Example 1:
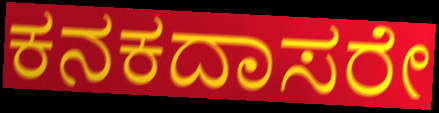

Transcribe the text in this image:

ಕನಕದಾಸರೇ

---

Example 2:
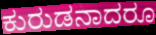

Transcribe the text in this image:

ಕುರುಡನಾದರೂ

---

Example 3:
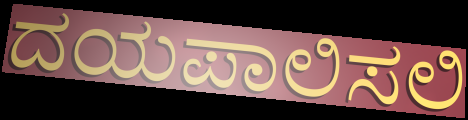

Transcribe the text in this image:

ದಯಪಾಲಿಸಲಿ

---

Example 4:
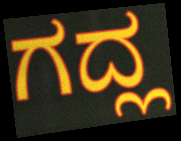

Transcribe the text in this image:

ಗದ್ಲ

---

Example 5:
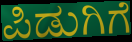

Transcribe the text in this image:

ಪಿಡುಗಿಗೆ